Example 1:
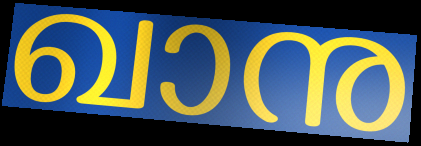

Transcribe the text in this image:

ഖാനു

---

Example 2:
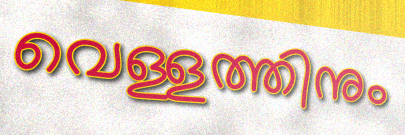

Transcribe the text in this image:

വെള്ളത്തിനും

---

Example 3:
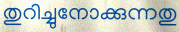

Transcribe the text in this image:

തുറിച്ചുനോക്കുന്നതു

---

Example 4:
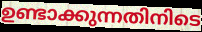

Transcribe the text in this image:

ഉണ്ടാക്കുന്നതിനിടെ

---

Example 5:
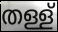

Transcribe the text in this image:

തള്ള്